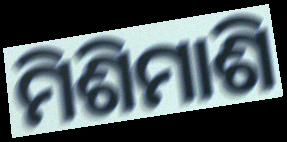
ମିଶିମାଶି